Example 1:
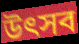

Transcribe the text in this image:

উত্‍সব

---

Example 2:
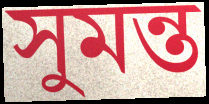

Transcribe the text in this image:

সুমন্ত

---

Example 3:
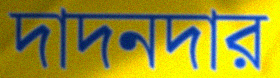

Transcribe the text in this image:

দাদনদার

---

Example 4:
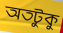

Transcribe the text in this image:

অতটুকু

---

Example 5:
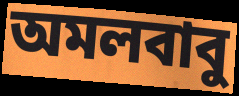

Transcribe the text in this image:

অমলবাবু